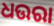
ଧଉରା